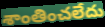
శాంతించలేదు